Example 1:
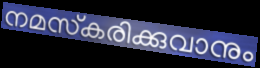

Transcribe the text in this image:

നമസ്‌കരിക്കുവാനും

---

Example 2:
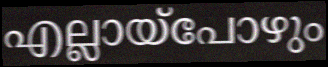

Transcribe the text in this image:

എല്ലായ്പോഴും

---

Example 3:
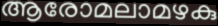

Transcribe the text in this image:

ആരോമലാമഴകു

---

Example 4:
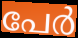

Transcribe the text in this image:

പേർ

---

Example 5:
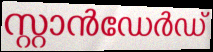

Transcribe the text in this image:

സ്റ്റാൻഡേർഡ്